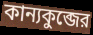
কান্যকুব্জের